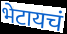
भेटायचं